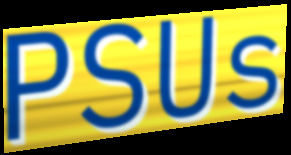
PSUs